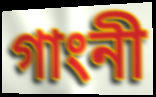
গাংনী